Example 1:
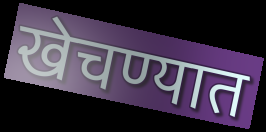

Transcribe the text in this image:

खेचण्यात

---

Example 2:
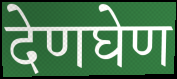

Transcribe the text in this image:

देणघेण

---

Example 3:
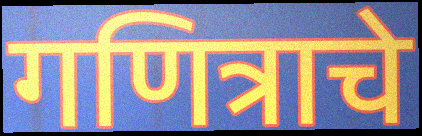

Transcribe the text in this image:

गणित्राचे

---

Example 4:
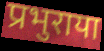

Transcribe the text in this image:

प्रभुराया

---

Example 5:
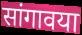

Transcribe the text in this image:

सांगावया